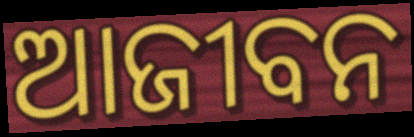
ଆଜୀବନ